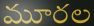
మూరల